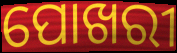
ପୋଖରୀ